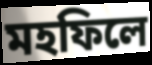
মহফিলে